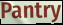
Pantry